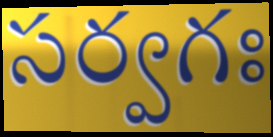
సర్వగః